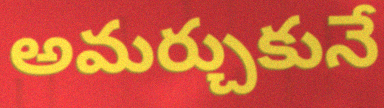
అమర్చుకునే